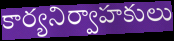
కార్యనిర్వాహకులు